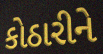
કોઠારીને